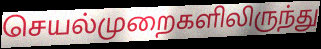
செயல்முறைகளிலிருந்து